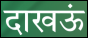
दाखऊं